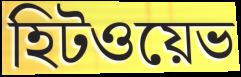
হিটওয়েভ